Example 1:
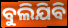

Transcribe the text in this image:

ବୁଲିଯିବି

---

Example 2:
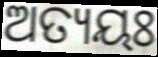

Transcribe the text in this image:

ଅତ୍ୟୟଃ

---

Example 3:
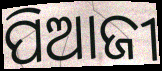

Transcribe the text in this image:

ପିଆଜୀ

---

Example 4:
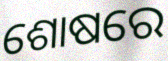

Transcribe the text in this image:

ଶୋଷରେ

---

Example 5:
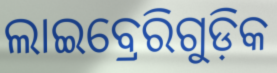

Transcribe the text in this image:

ଲାଇବ୍ରେରିଗୁଡ଼ିକ